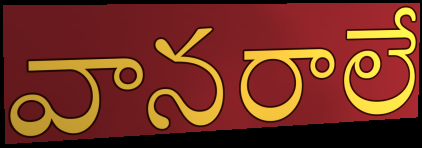
వానరాలే